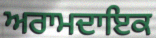
ਅਰਾਮਦਾਇਕ